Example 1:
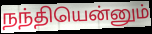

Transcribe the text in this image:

நந்தியென்னும்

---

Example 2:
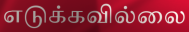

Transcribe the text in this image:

எடுக்கவில்லை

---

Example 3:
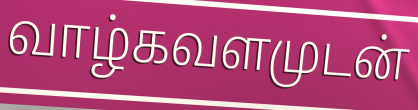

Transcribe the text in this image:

வாழ்கவளமுடன்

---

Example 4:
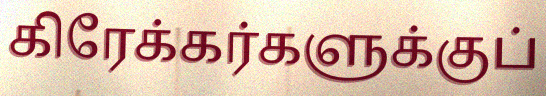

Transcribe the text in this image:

கிரேக்கர்களுக்குப்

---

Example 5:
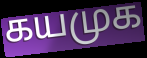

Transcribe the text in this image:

கயமுக